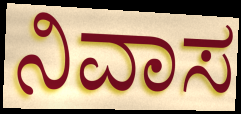
ನಿವಾಸ